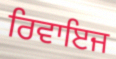
ਰਿਵਾਇਜ